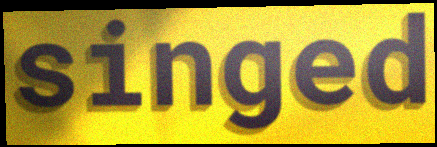
singed